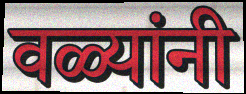
वळ्यांनी